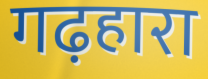
गढ़हारा